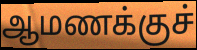
ஆமணக்குச்